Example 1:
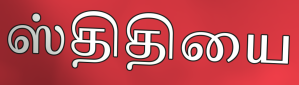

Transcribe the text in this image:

ஸ்திதியை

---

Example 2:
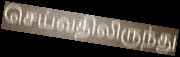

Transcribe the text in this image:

செய்வதிலிருந்து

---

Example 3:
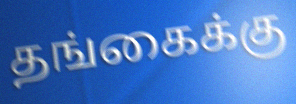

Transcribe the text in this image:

தங்கைக்கு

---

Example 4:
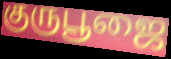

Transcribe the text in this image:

குருபூஜை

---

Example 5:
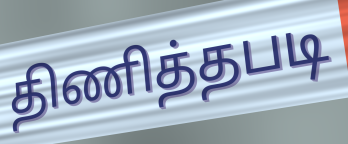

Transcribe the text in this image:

திணித்தபடி